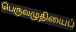
பெருவழுதியைப்